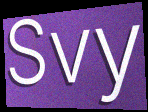
Svy